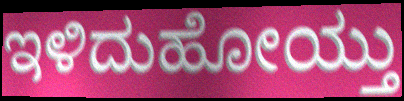
ಇಳಿದುಹೋಯ್ತು